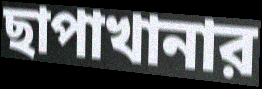
ছাপাখানার